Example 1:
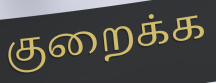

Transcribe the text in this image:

குறைக்க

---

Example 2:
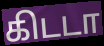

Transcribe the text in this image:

கிடடா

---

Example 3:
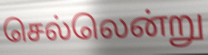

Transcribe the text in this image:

செல்லென்று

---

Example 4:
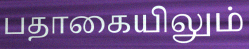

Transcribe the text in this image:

பதாகையிலும்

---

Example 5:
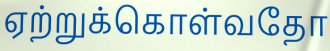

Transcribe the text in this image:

ஏற்றுக்கொள்வதோ